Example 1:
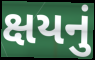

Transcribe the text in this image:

ક્ષયનું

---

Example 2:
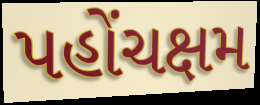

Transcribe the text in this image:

પહોંચક્ષમ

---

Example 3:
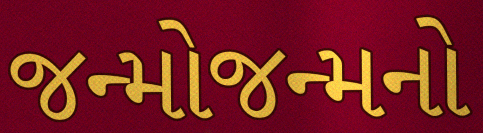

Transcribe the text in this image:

જન્મોજન્મનો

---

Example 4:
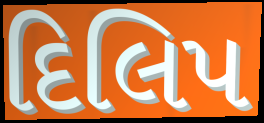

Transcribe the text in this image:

દિલિપ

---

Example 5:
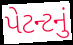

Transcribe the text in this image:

પેટન્ટનું